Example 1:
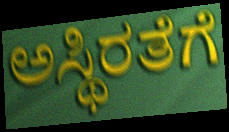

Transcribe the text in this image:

ಅಸ್ಥಿರತೆಗೆ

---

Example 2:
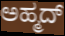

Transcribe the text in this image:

ಅಹ್ಮದ್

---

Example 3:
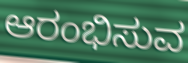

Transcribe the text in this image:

ಆರಂಭಿಸುವ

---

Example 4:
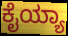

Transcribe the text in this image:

ಕೈಯ್ಯಾ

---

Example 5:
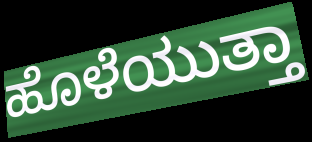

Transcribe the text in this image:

ಹೊಳೆಯುತ್ತಾ